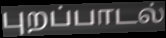
புறப்பாடல்